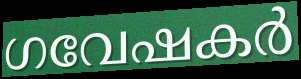
ഗവേഷകർ